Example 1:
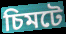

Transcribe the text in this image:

চিমটে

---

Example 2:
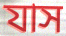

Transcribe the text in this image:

যাস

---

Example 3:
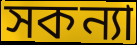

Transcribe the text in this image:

সকন্যা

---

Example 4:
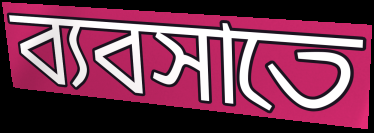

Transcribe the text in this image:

ব্যবসাতে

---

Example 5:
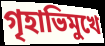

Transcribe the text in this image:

গৃহাভিমুখে